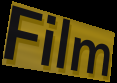
Film